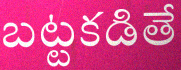
బట్టకడితే